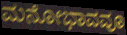
ಮನೋಭಾವವೂ